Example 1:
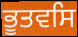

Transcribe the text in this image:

ਭੂਤਵਸਿ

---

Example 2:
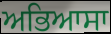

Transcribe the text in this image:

ਅਭਿਆਸਾ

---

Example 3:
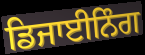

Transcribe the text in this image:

ਡਿਜਾਈਨਿੰਗ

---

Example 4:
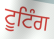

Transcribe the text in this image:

ਟੂਟਿੰਗ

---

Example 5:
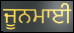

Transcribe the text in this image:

ਜੂਨਮਾਈ